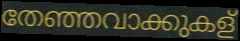
തേഞ്ഞവാക്കുകള്